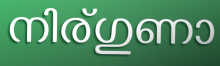
നിര്ഗുണാ